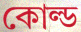
কোল্ড